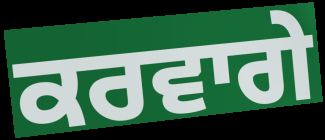
ਕਰਵਾਗੇ